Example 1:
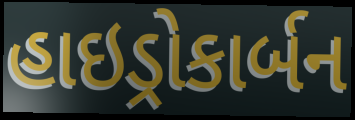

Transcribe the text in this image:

હાઇડ્રોકાર્બન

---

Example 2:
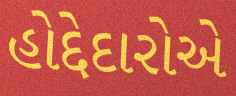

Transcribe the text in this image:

હોદ્દેદારોએ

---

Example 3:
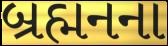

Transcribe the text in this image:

બ્રહ્મનના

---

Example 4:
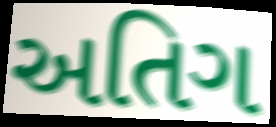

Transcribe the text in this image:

અતિગ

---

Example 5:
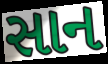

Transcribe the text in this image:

સાન